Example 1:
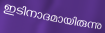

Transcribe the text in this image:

ഇടിനാദമായിരുന്നു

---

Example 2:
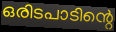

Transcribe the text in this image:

ഒരിടപാടിന്റെ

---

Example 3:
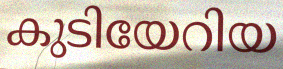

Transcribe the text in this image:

കുടിയേറിയ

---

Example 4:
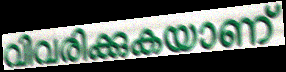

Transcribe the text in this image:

വിവരിക്കുകയാണ്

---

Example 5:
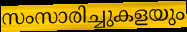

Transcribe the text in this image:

സംസാരിച്ചുകളയും